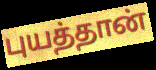
புயத்தான்